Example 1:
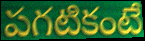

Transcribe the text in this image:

పగటికంటే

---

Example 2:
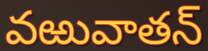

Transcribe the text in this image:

వఱువాతన్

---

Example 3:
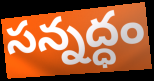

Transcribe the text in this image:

సన్నద్ధం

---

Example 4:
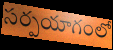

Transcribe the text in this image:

సర్పయాగంలో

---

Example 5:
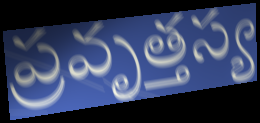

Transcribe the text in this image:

ప్రవృత్తస్య